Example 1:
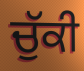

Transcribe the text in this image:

ਚੁੱਕੀ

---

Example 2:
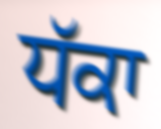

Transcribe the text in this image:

ਧੱਕਾ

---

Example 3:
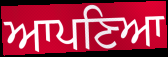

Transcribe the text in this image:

ਆਪਣਿਆ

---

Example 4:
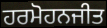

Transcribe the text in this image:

ਹਰਮੋਹਨਜੀਤ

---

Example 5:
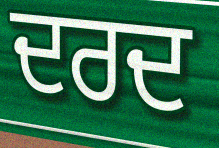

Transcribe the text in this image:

ਦਰਦ